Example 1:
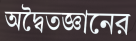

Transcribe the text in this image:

অদ্বৈতজ্ঞানের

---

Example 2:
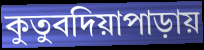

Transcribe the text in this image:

কুতুবদিয়াপাড়ায়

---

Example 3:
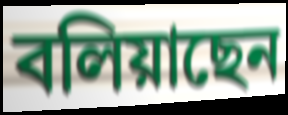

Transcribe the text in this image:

বলিয়াছেন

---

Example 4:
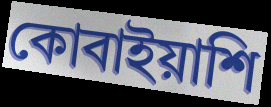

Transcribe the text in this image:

কোবাইয়াশি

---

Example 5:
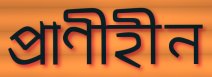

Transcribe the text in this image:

প্রাণীহীন